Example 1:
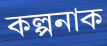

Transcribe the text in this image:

কল্পনাক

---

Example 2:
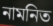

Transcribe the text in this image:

নামনিত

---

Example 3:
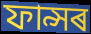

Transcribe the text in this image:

ফান্সৰ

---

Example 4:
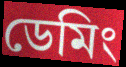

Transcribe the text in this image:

ডেমিং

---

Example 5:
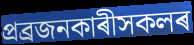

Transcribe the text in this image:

প্ৰব্ৰজনকাৰীসকলৰ